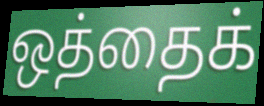
ஒத்தைக்